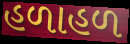
હળાહળ